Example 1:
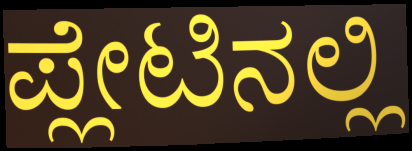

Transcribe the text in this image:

ಪ್ಲೇಟಿನಲ್ಲಿ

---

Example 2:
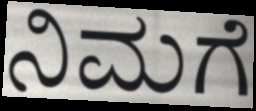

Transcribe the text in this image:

ನಿಮಗೆ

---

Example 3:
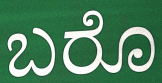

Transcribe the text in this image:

ಬರೊ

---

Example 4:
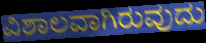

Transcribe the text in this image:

ವಿಶಾಲವಾಗಿರುವುದು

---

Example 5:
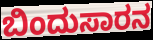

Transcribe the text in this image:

ಬಿಂದುಸಾರನ